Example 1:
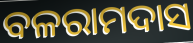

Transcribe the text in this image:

ବଳରାମଦାସ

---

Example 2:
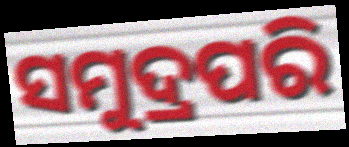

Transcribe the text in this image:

ସମୁଦ୍ରପରି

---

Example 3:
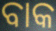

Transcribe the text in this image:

ବାକ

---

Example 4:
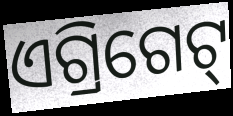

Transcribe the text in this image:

ଏଗ୍ରିଗେଟ୍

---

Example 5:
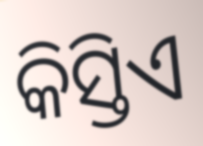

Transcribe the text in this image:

କିସ୍ତିଏ